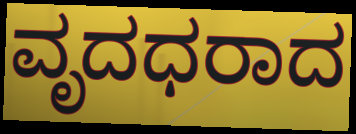
ವೃದಧರಾದ